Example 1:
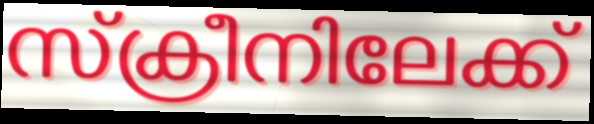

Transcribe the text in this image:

സ്‌ക്രീനിലേക്ക്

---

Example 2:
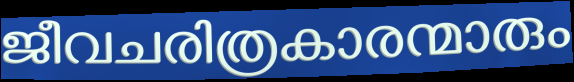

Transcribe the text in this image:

ജീവചരിത്രകാരന്മാരും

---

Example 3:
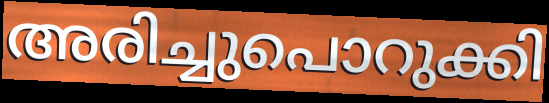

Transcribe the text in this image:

അരിച്ചുപൊറുക്കി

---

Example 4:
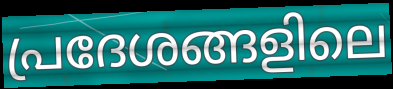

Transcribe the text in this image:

പ്രദേശങ്ങളിലെ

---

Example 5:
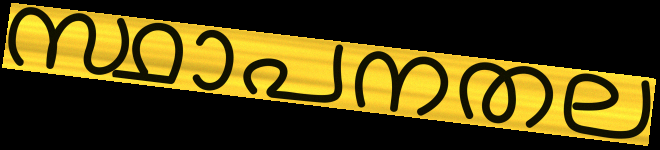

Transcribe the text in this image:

സ്ഥാപനതല